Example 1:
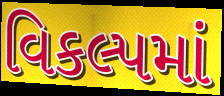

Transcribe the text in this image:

વિકલ્પમાં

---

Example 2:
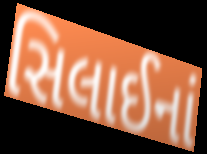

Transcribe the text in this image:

સિલાઈનાં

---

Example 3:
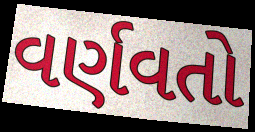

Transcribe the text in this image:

વર્ણવતો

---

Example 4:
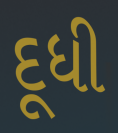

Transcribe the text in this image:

દૂધી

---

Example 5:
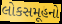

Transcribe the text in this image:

લોકસમૂહનો